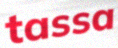
tassa